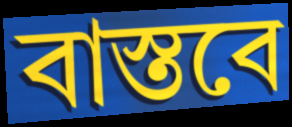
বাস্তবে